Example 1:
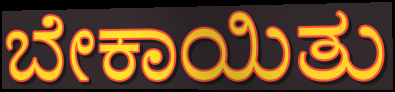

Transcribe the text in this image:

ಬೇಕಾಯಿತು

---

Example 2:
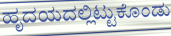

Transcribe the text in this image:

ಹೃದಯದಲ್ಲಿಟ್ಟುಕೊಂಡು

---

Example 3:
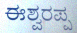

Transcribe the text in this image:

ಈಶ್ವರಪ್ಪ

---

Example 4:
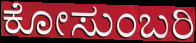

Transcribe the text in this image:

ಕೋಸುಂಬರಿ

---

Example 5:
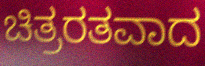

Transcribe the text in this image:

ಚಿತ್ರರತವಾದ